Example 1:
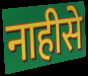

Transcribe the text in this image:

नाहीसे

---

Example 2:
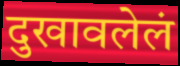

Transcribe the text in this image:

दुखावलेलं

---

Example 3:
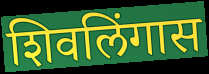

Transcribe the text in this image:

शिवलिंगास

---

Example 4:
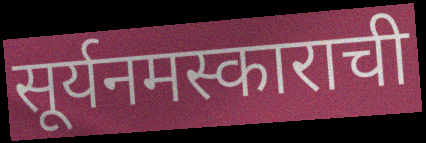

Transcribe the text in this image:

सूर्यनमस्काराची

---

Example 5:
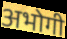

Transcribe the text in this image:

अभोगी